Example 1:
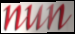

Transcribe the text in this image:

nun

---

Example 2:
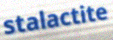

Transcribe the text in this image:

stalactite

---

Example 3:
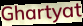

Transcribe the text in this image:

Ghartyat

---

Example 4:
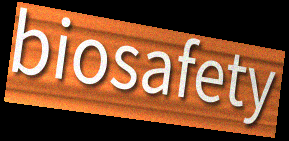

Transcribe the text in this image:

biosafety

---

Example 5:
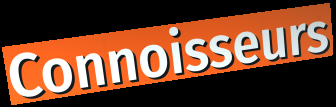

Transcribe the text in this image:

Connoisseurs